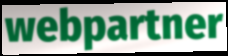
webpartner